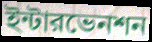
ইন্টারভেনশন